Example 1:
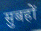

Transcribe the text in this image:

सुबहों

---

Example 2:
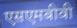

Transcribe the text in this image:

एसएमबीवी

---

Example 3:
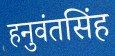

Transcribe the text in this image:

हनुवंतसिंह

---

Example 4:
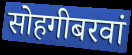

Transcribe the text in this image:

सोहगीबरवां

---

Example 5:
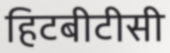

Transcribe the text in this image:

हिटबीटीसी